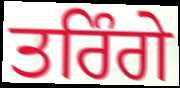
ਤਰਿੰਗੇ